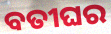
ବତୀଘର